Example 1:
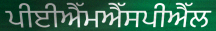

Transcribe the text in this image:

ਪੀਈਐੱਮਐੱਸਪੀਐੱਲ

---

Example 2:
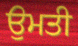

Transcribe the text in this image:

ਉਮਤੀ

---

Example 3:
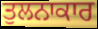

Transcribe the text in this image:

ਤੁਲਨਾਕਾਰ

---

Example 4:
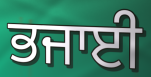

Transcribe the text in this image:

ਭਜਾਈ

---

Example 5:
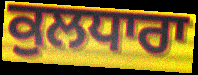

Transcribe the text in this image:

ਕੁਲਧਾਰਾ